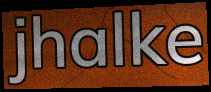
jhalke